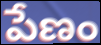
పేణం